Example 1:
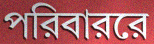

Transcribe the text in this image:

পরিবাররে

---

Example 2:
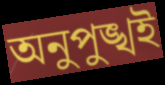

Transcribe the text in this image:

অনুপুঙ্খই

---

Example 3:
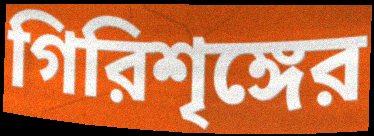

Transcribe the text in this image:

গিরিশৃঙ্গের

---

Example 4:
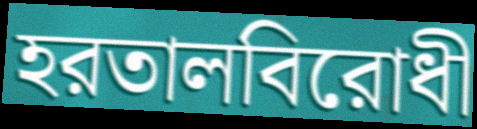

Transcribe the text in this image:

হরতালবিরোধী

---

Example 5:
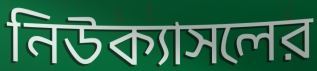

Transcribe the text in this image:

নিউক্যাসলের